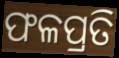
ଫଳପ୍ରତି